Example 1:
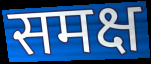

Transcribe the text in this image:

समक्ष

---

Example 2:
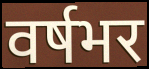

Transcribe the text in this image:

वर्षभर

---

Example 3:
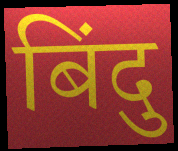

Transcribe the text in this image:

बिंदु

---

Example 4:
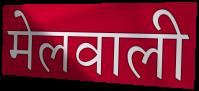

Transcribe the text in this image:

मेलवाली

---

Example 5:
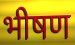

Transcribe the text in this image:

भीषण